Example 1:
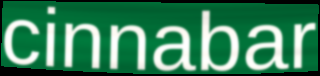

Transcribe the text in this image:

cinnabar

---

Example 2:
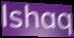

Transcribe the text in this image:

Ishaq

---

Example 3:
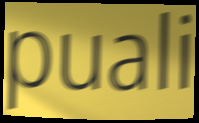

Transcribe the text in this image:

puali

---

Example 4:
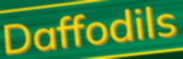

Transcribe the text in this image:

Daffodils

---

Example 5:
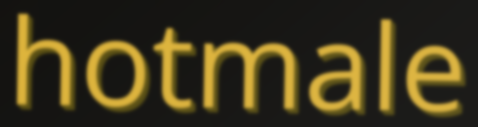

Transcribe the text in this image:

hotmale